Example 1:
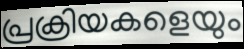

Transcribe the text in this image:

പ്രക്രിയകളെയും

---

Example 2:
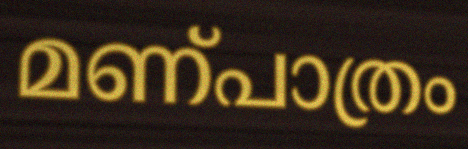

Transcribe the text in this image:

മണ്പാത്രം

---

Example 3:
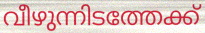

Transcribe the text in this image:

വീഴുന്നിടത്തേക്ക്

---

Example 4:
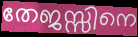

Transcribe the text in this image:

തേജസ്സിനെ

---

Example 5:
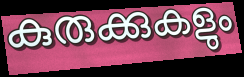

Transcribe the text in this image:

കുരുക്കുകളും